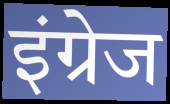
इंग्रेज